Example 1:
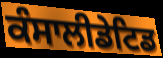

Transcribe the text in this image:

ਕੰਸਾਲੀਡੇਟਿਡ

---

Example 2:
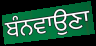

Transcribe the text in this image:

ਬੰਨਵਾਉਣਾ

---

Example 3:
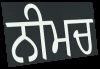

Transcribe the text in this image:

ਨੀਮਚ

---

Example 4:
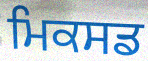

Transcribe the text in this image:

ਮਿਕਸਡ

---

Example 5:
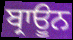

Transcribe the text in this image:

ਬ੍ਰਾਊਨ